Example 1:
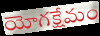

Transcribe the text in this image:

యోగక్షేమం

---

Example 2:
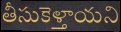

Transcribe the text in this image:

తీసుకెళ్తాయని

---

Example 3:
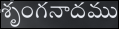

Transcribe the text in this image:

శృంగనాదము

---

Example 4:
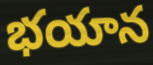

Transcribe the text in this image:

భయాన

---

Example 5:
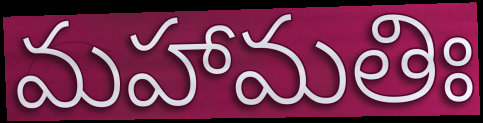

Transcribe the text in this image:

మహామతిః